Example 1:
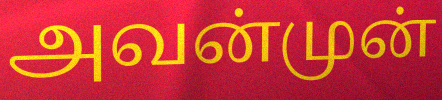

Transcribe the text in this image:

அவன்முன்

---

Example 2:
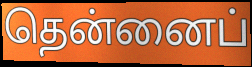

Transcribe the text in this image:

தென்னைப்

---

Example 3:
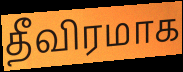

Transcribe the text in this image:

தீவிரமாக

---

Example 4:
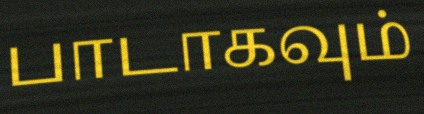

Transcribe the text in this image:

பாடாகவும்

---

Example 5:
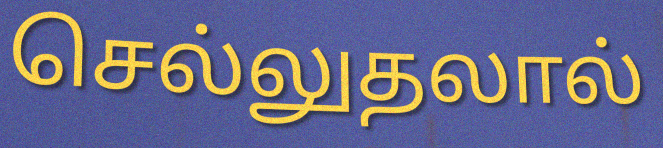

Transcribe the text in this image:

செல்லுதலால்